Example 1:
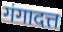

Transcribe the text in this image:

गंगादत्त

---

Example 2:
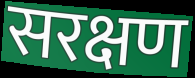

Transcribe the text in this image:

सरक्षण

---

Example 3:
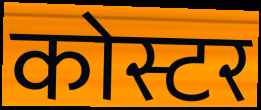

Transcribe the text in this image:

कोस्टर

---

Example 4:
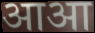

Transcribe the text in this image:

आआ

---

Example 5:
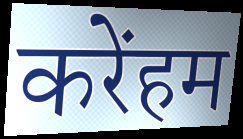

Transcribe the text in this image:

करेंहम